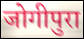
जोगीपुरा